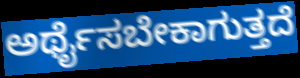
ಅರ್ಥೈಸಬೇಕಾಗುತ್ತದೆ